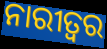
ନାରୀତ୍ଵର